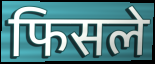
फिसले